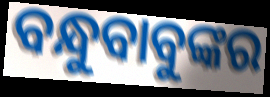
ବନ୍ଧୁବାବୁଙ୍କର